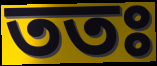
ততঃ